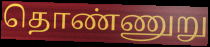
தொண்ணுறு